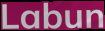
Labun